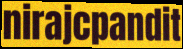
nirajcpandit